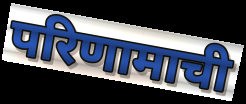
परिणामाची